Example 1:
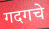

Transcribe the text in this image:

गदगचे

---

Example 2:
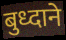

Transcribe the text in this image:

बुध्दाने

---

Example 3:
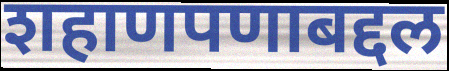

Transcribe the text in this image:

शहाणपणाबद्दल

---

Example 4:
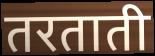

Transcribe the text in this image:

तरताती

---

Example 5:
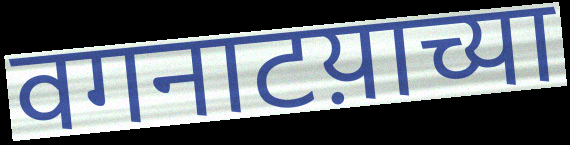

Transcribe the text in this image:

वगनाटय़ाच्या